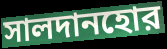
সালদানহোর